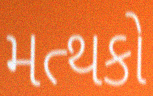
મત્થકો